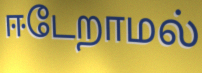
ஈடேறாமல்